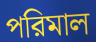
পরিমাল